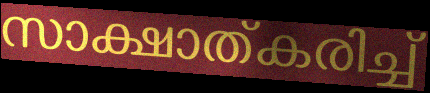
സാക്ഷാത്കരിച്ച്